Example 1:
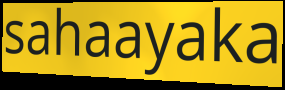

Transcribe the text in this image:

sahaayaka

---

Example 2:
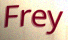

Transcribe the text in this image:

Frey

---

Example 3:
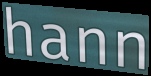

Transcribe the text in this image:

hann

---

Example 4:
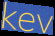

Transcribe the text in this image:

kev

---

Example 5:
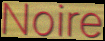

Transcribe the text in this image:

Noire